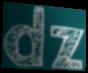
dz